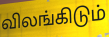
விலங்கிடும்